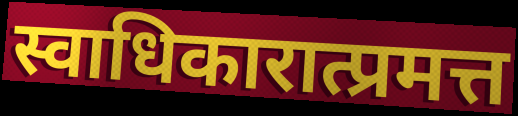
स्वाधिकारात्प्रमत्त